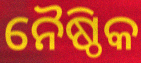
ନୈଷ୍ଠିକ